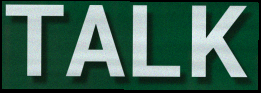
TALK